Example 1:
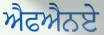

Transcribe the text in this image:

ਐਫਐਨਏ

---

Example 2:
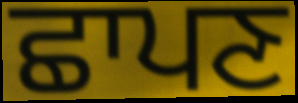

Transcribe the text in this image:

ਛਾਪਣ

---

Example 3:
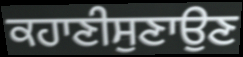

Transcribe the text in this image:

ਕਹਾਣੀਸੁਣਾਉਣ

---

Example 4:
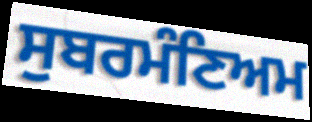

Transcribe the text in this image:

ਸੁਬਰਮੰਣਿਅਮ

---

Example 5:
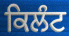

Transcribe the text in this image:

ਕਿਲੰਟ